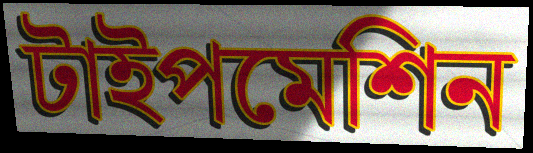
টাইপমেশিন